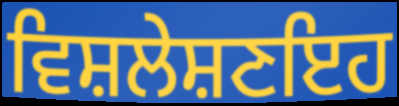
ਵਿਸ਼ਲੇਸ਼ਣਇਹ